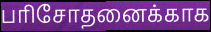
பரிசோதனைக்காக